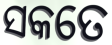
ସକତେ